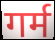
गर्म